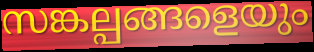
സങ്കല്പങ്ങളെയും